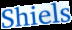
Shiels